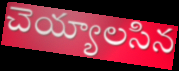
చెయ్యాలసిన